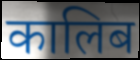
कालिब